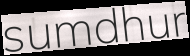
sumdhur